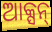
ଆକ୍ସନ୍